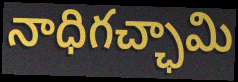
నాధిగచ్ఛామి